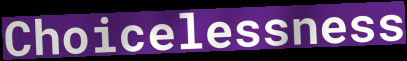
Choicelessness